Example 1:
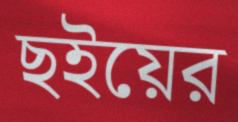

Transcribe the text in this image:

ছইয়ের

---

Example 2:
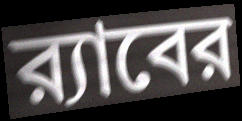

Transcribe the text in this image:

র‍্যাবের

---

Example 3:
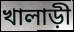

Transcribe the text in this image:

খালাড়ী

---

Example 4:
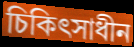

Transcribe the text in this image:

চিকিৎসাধীন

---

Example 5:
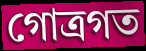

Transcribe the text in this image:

গোত্রগত